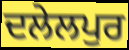
ਦਲੇਲਪੁਰ